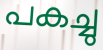
പകച്ചു